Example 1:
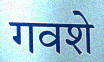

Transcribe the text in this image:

गवशे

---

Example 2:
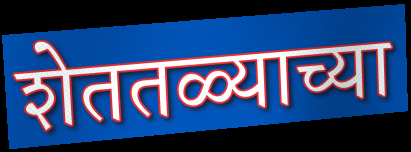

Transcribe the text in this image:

शेततळ्याच्या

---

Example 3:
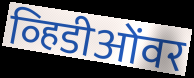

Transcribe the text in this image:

व्हिडीओंवर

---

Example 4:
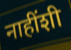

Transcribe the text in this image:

नाहींशी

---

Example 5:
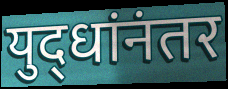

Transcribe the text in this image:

युद्धांनंतर